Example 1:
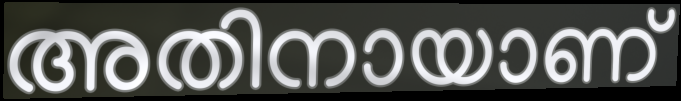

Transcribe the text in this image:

അതിനായാണ്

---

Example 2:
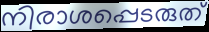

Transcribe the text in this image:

നിരാശപ്പെടരുത്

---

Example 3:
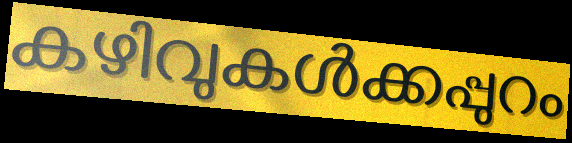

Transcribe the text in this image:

കഴിവുകൾക്കപ്പുറം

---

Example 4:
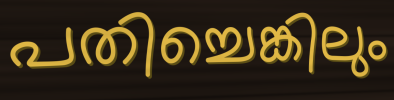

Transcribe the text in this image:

പതിച്ചെങ്കിലും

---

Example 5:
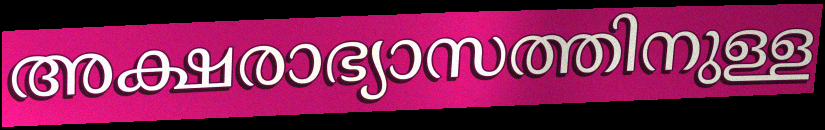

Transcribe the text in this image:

അക്ഷരാഭ്യാസത്തിനുള്ള